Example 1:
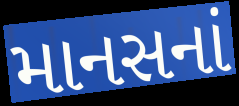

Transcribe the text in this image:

માનસનાં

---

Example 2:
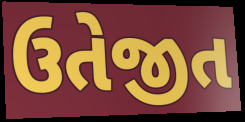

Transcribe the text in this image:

ઉતેજીત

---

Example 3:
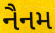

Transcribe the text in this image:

નૈનમ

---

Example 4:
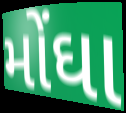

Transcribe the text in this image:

મોંઘા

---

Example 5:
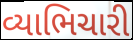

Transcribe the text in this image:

વ્યાભિચારી